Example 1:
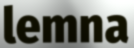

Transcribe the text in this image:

lemna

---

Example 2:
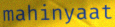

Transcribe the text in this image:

mahinyaat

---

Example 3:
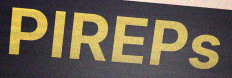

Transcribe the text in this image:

PIREPs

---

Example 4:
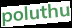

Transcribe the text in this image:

poluthu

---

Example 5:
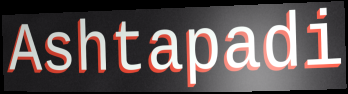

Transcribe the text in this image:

Ashtapadi